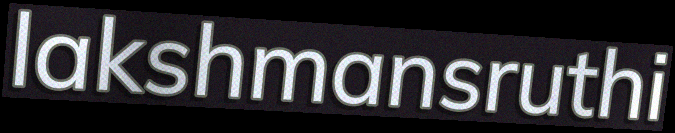
lakshmansruthi